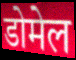
डोमेल